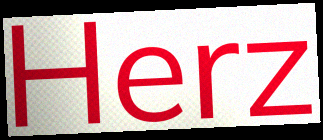
Herz